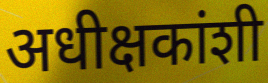
अधीक्षकांशी